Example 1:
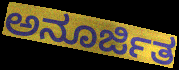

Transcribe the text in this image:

ಅನೂರ್ಜಿತ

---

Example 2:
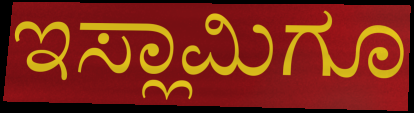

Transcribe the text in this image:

ಇಸ್ಲಾಮಿಗೂ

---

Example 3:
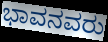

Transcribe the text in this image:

ಭಾವನವರು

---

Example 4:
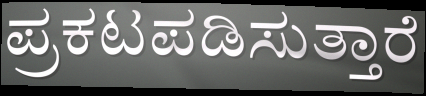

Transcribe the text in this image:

ಪ್ರಕಟಪಡಿಸುತ್ತಾರೆ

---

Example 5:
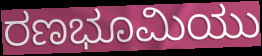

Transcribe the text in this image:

ರಣಭೂಮಿಯು